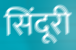
सिंदूरी